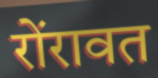
रोंरावत